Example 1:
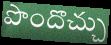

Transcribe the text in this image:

పొందొచ్చు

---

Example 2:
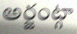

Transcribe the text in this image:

అర్జంట్గా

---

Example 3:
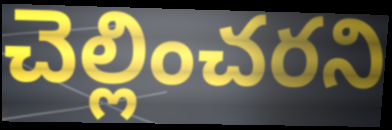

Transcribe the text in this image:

చెల్లించరని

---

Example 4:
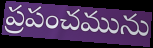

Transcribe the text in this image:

ప్రపంచమును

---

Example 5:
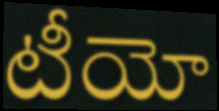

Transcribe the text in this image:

టీయో